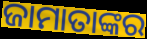
ଜାମାତାଙ୍କର